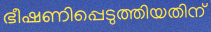
ഭീഷണിപ്പെടുത്തിയതിന്